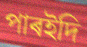
পাৰইদি